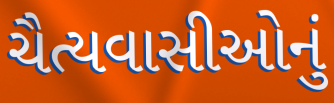
ચૈત્યવાસીઓનું